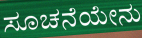
ಸೂಚನೆಯೇನು